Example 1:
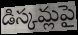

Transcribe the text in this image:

డిస్కమ్లపై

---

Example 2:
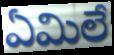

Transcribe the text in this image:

ఏమిలే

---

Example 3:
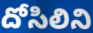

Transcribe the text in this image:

దోసిలిని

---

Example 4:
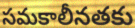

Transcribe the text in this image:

సమకాలీనతకు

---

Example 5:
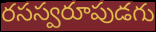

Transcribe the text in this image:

రసస్వరూపుడగు